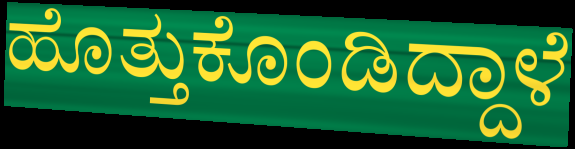
ಹೊತ್ತುಕೊಂಡಿದ್ದಾಳೆ